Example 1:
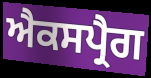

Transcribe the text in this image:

ਐਕਸਪ੍ਰੈਗ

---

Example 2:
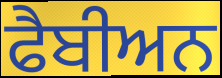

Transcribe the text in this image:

ਫੈਬੀਅਨ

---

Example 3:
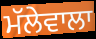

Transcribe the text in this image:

ਮੱਲੇਵਾਲਾ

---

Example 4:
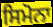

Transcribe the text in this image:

ਸਿਮੋਨਾ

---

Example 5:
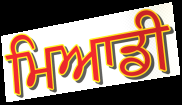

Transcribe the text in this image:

ਮਿਆਡੀ